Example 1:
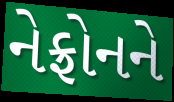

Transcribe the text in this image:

નેફ્રોનને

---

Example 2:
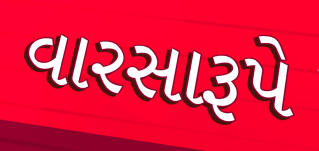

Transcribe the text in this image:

વારસારૂપે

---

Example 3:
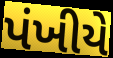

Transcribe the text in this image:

પંખીયે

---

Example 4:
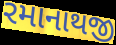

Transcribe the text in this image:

રમાનાથજી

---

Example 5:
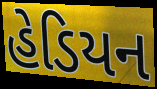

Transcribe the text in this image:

હેડિયન